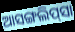
ଆସଙ୍ଗଲିପ୍‌ସା